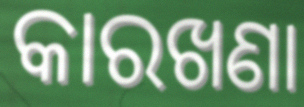
କାରଖଣା